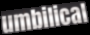
umbilical